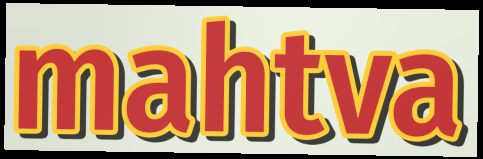
mahtva